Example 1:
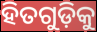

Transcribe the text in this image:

ହିତଗୁଡ଼ିକୁ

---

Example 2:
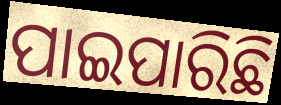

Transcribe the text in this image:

ପାଇପାରିଛି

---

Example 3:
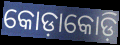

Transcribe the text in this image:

କୋଡ଼ାକୋଡ଼ି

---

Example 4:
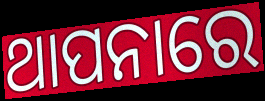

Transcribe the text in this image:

ଥାପନାରେ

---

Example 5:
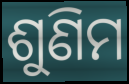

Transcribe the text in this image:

ଶୁଣିମ